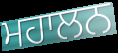
ਮਹਾਲਨ